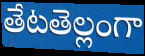
తేటతెల్లంగా